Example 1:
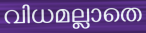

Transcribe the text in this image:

വിധമല്ലാതെ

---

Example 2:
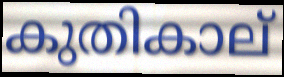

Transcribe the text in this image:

കുതികാല്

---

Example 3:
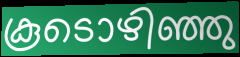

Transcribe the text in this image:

കൂടൊഴിഞ്ഞു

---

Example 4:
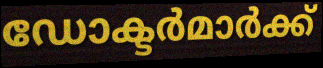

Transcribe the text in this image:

ഡോക്ടർമാർക്ക്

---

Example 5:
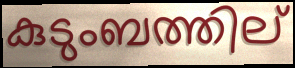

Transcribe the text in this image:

കുടുംബത്തില്